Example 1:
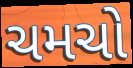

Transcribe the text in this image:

ચમચો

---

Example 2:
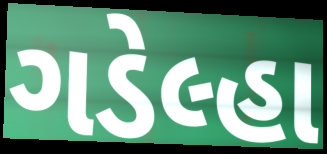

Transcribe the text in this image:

ગડેલ્હા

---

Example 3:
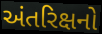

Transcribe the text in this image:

અંતરિક્ષનો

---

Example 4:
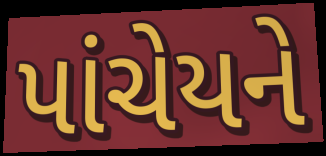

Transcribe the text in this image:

પાંચેયને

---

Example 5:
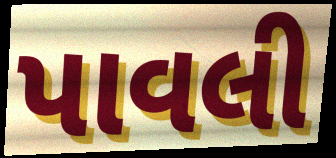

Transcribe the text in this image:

પાવલી